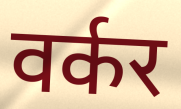
वर्कर